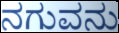
ನಗುವನು